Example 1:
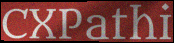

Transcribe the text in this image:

CXPathi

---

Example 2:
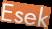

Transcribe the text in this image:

Esek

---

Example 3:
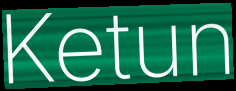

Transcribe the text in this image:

Ketun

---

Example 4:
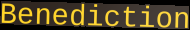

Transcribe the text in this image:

Benediction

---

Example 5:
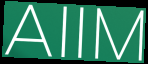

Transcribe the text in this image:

AIIM